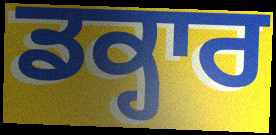
ਡਕ੍ਹਾਰ